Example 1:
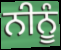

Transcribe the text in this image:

ਨੀਨੂੰ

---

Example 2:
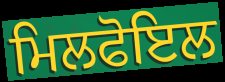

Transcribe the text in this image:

ਮਿਲਫੋਇਲ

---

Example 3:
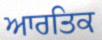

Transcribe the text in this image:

ਆਰਤਿਕ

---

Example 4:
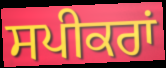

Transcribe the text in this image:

ਸਪੀਕਰਾਂ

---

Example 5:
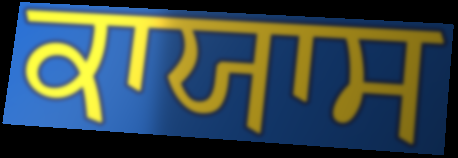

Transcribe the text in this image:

ਕਾਯਾਸ